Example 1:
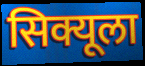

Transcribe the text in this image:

सिक्यूला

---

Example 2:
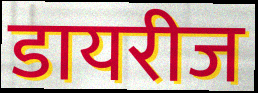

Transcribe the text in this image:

डायरीज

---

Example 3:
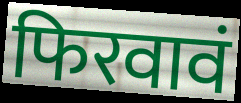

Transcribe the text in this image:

फिरवावं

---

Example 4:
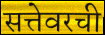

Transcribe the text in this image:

सत्तेवरची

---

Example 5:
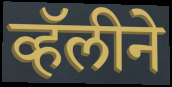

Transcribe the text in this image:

व्हॅलीने